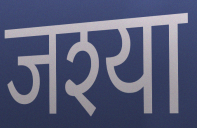
जश्या